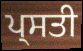
ਪ੍ਸਤੀ